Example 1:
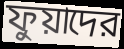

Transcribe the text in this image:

ফুয়াদের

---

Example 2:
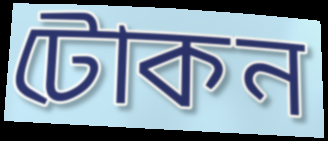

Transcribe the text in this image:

টোকন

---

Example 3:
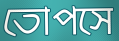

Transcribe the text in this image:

তোপসে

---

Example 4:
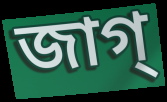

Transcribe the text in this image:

জাগ্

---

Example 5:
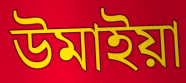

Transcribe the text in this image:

উমাইয়া